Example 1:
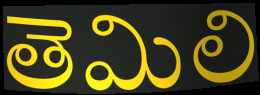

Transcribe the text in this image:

తెమిలి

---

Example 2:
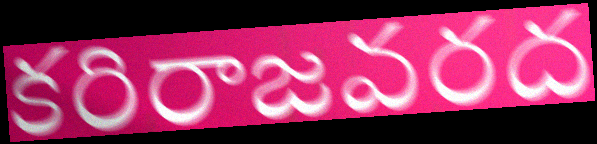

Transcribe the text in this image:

కరిరాజవరద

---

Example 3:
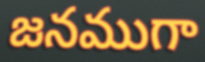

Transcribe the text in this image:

జనముగా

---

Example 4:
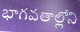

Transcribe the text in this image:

భాగవతాల్లోని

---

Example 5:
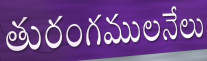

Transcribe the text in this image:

తురంగములనేలు